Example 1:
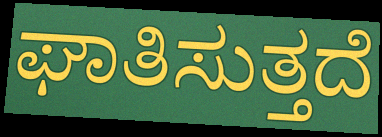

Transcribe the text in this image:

ಘಾತಿಸುತ್ತದೆ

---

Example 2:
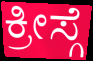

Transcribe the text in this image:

ಕ್ರೀಸ್ಗೆ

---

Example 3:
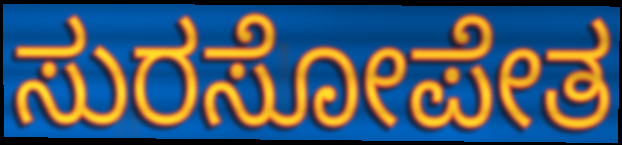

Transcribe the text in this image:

ಸುರಸೋಪೇತ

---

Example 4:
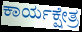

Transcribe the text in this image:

ಕಾರ್ಯಕ್ಷೇತ್ರ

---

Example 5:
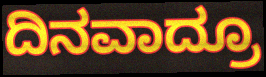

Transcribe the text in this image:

ದಿನವಾದ್ರೂ